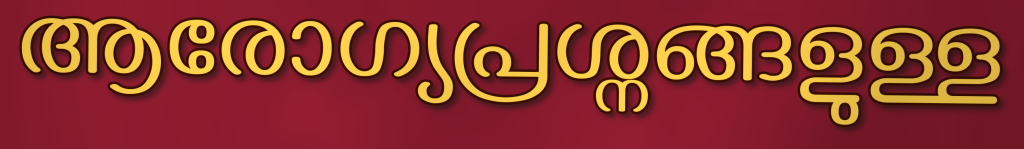
ആരോഗ്യപ്രശ്നങ്ങളുള്ള